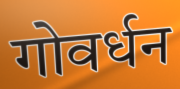
गोवर्धन